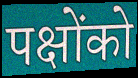
पक्षोंको